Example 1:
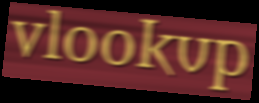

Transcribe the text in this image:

vlookup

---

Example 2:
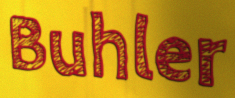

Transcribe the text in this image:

Buhler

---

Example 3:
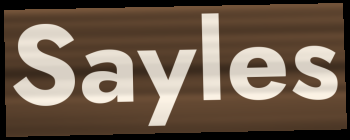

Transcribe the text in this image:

Sayles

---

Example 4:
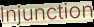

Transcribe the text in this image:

Injunction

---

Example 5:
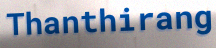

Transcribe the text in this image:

Thanthirang